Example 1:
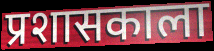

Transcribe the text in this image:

प्रशासकाला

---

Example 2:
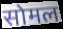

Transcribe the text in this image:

सोमल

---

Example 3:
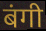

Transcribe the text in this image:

बंगी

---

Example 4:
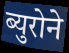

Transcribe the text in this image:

ब्युरोने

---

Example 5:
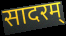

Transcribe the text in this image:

सादरम्